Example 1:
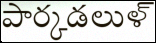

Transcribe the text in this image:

పార్కడలుళ్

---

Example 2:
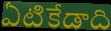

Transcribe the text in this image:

ఏటికేడాది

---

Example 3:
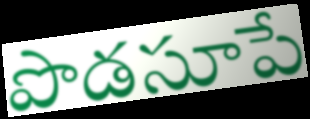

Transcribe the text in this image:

పొడసూపే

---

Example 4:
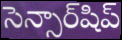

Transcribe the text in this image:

సెన్సార్‌షిప్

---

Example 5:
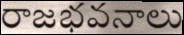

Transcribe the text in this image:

రాజభవనాలు